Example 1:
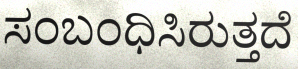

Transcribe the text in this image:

ಸಂಬಂಧಿಸಿರುತ್ತದೆ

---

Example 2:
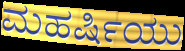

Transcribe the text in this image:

ಮಹರ್ಷಿಯು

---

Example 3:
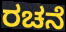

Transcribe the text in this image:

ರಚನೆ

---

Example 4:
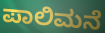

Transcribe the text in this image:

ಪಾಲಿಮನೆ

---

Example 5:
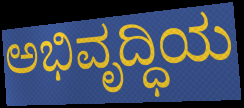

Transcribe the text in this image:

ಅಭಿವೃದ್ಧಿಯ